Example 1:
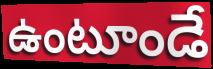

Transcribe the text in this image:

ఉంటూండే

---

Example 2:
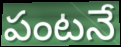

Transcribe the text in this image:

పంటనే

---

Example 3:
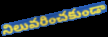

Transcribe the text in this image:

నిలువరించకుండా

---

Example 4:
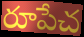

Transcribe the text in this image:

రూపేచ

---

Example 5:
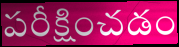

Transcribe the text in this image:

పరీక్షించడం